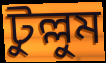
টুল্লুম